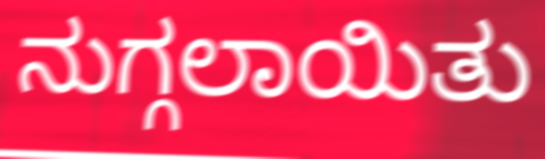
ನುಗ್ಗಲಾಯಿತು